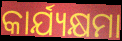
କାର୍ଯ୍ୟକ୍ଷମା